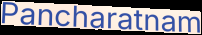
Pancharatnam